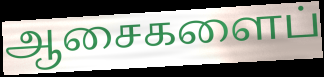
ஆசைகளைப்